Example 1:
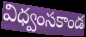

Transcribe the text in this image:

విధ్వంసకాండ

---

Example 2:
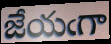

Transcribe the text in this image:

జేయఁగా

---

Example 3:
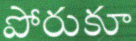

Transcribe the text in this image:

పోరుకూ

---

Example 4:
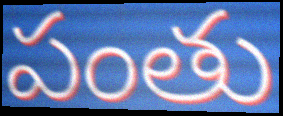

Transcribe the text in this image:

పంతు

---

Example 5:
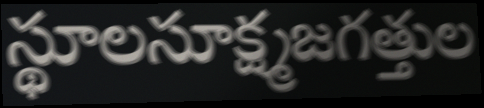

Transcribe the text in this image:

స్థూలసూక్ష్మజగత్తుల